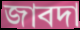
জাবদা